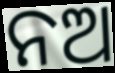
ନଅ